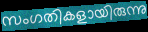
സംഗതികളായിരുന്നു